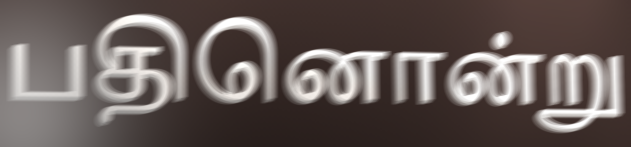
பதினொன்று